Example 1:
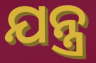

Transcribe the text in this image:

ଯନ୍ତ୍ର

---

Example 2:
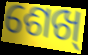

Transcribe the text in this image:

ଶେଖ୍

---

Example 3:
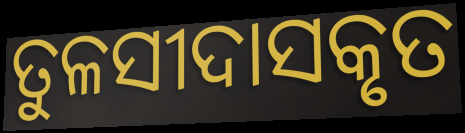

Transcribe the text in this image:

ତୁଳସୀଦାସକୃତ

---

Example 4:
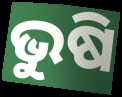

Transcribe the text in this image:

ଭୁଷି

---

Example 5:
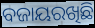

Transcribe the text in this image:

ବଜାୟରଖିଛି